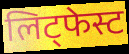
लिट्फेस्ट